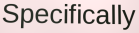
Specifically